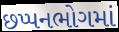
છપ્પનભોગમાં